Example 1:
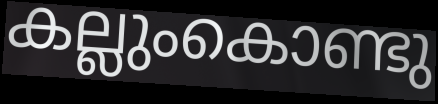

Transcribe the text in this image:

കല്ലുംകൊണ്ടു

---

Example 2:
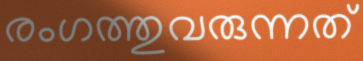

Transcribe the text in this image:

രംഗത്തുവരുന്നത്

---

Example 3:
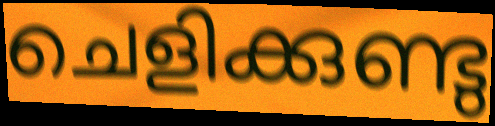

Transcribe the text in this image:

ചെളിക്കുണ്ടു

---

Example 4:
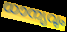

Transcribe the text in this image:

ധാന്യവും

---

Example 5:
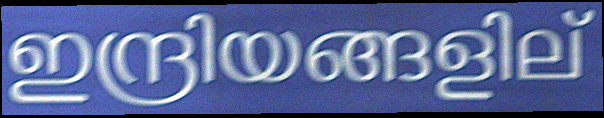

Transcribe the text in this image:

ഇന്ദ്രിയങ്ങളില്